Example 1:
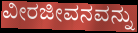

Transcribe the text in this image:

ವೀರಜೀವನವನ್ನು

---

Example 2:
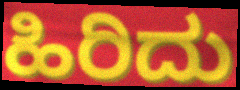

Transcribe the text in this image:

ಹಿರಿದು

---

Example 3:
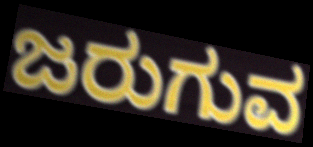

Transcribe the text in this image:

ಜರುಗುವ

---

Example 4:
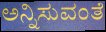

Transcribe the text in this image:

ಅನ್ನಿಸುವಂತೆ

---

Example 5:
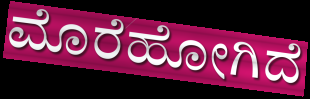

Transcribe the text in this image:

ಮೊರೆಹೋಗಿದೆ